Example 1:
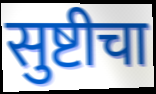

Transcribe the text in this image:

सुष्टीचा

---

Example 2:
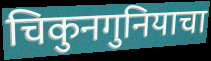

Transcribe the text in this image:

चिकुनगुनियाचा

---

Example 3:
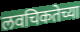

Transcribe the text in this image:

लवचिकतेच्या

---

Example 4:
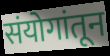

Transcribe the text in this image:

संयोगांतून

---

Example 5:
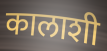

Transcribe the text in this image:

कालाशी